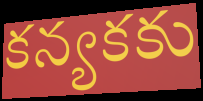
కన్యకకు